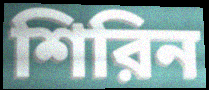
শিরিন